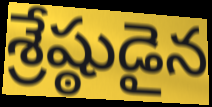
శ్రేష్ఠుడైన